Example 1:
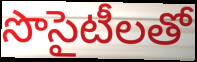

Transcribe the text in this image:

సొసైటీలతో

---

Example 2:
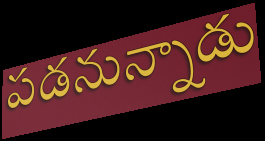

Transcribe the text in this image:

పడనున్నాడు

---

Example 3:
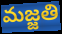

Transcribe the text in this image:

మజ్జతి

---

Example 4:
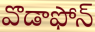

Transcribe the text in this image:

వొడాఫోన్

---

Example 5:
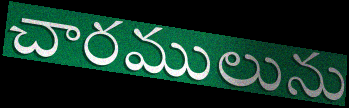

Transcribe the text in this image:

చారములును